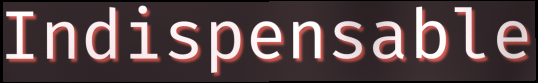
Indispensable